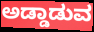
ಅಡ್ಡಾಡುವ